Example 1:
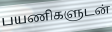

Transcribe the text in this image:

பயணிகளுடன்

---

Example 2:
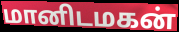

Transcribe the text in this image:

மானிடமகன்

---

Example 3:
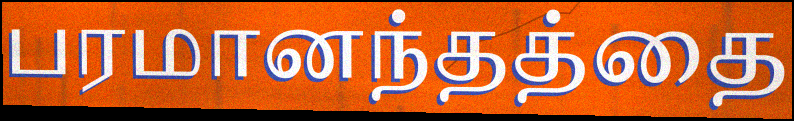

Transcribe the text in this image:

பரமானந்தத்தை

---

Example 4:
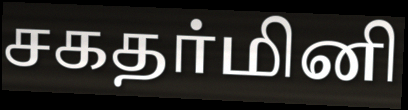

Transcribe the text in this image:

சகதர்மினி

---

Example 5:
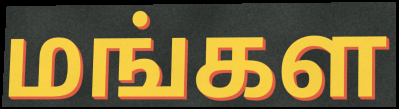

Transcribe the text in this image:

மங்கள